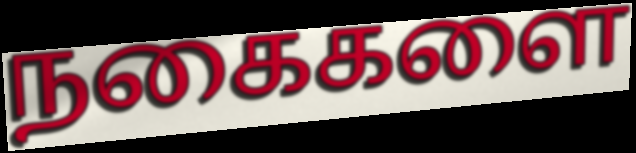
நகைகளை